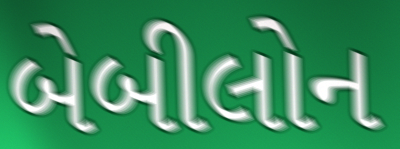
બેબીલોન